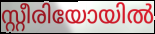
സ്റ്റീരിയോയിൽ